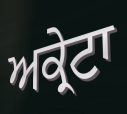
ਅਕ੍ਰੇਟਾ